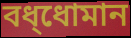
বধ্ধোমান